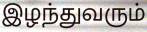
இழந்துவரும்